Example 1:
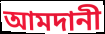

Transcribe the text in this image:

আমদানী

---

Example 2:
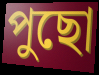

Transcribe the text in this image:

পুছো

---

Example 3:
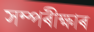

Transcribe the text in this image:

সম্পৰীক্ষাৰ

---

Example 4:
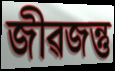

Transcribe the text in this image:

জীৱজন্তু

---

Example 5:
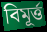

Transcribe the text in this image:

বিমূৰ্ত্ত